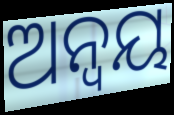
ଅନ୍ୱୟ